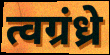
त्वग्रंध्रे